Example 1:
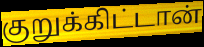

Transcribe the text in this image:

குறுக்கிட்டான்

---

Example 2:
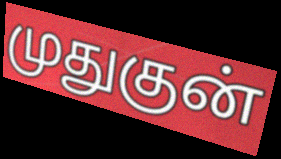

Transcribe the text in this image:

முதுகுன்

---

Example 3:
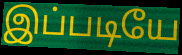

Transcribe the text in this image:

இப்படியே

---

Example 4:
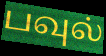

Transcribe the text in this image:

பவுல்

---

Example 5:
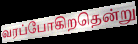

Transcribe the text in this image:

வரப்போகிறதென்று